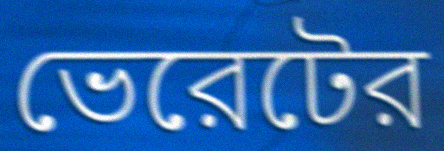
ভেরেটের